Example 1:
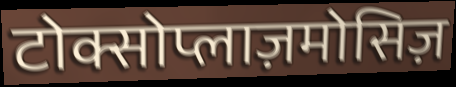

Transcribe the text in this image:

टोक्सोप्लाज़मोसिज़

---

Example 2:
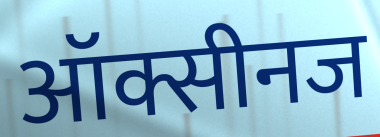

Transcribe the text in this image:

ऑक्सीनज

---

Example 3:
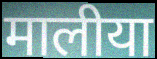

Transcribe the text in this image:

मालीया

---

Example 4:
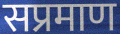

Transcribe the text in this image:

सप्रमाण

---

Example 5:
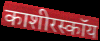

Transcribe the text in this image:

काशीरस्कॉय